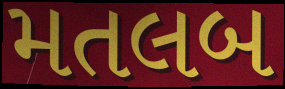
મતલબ